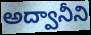
అద్వానీని